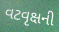
વટવૃક્ષની